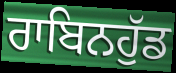
ਰਾਬਿਨਹੁੱਡ